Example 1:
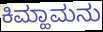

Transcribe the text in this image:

ಕಿಮ್ಹಾಮನು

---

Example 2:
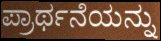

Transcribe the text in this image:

ಪ್ರಾರ್ಥನೆಯನ್ನು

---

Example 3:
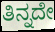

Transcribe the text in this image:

ತಿನ್ನದೇ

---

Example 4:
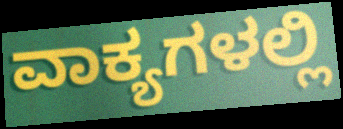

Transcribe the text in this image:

ವಾಕ್ಯಗಳಲ್ಲಿ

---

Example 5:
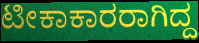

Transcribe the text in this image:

ಟೀಕಾಕಾರರಾಗಿದ್ದ